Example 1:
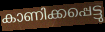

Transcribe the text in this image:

കാണിക്കപ്പെട്ടു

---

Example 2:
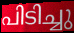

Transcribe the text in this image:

പിടിച്ചു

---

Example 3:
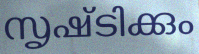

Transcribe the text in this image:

സൃഷ്‌ടിക്കും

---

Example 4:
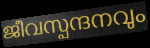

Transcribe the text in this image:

ജീവസ്പന്ദനവും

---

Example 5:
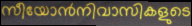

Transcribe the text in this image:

സീയോൻനിവാസികളുടെ